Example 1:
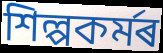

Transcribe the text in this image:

শিল্পকৰ্মৰ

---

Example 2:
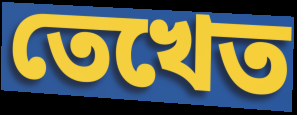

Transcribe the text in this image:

তেখেত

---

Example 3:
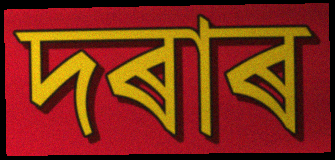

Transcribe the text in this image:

দৰাৰ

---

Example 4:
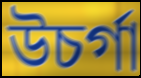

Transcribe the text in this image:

উচৰ্গা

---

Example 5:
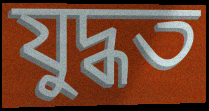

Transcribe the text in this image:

যুদ্ধত